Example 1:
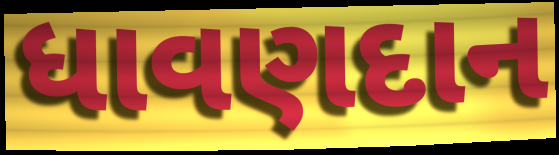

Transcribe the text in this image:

ધાવણદાન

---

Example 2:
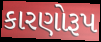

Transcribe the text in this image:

કારણોરૂપ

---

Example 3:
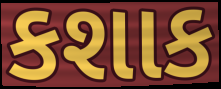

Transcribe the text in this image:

કશાક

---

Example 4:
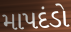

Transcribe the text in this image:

માપદંડો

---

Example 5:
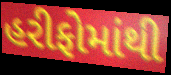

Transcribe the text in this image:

હરીફોમાંથી